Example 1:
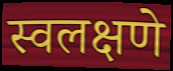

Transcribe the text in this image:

स्वलक्षणे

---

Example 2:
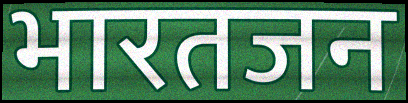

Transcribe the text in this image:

भारतजन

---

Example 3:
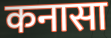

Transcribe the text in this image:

कनासा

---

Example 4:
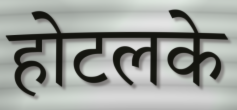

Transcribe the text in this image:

होटलके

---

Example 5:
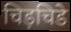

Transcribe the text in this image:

चिड़चिडे